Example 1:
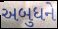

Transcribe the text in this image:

અબુધને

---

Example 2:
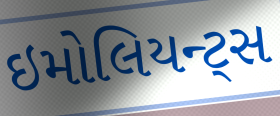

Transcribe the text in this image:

ઇમોલિયન્ટ્સ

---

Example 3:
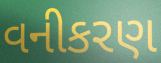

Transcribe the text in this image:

વનીકરણ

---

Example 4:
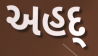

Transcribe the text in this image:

અહદ્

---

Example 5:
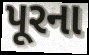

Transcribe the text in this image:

પૂરના